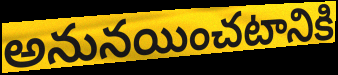
అనునయించటానికి